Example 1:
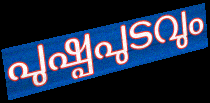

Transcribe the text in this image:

പുഷ്പപുടവും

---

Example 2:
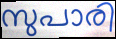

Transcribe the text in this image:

സുപാരി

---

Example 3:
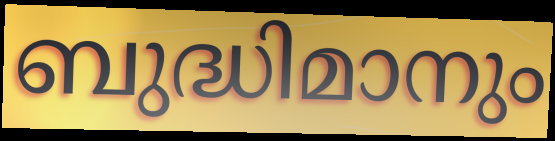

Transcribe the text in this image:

ബുദ്ധിമാനും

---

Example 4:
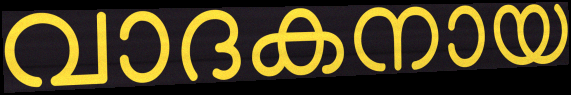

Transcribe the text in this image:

വാദകനായ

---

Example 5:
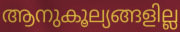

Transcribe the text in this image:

ആനുകൂല്യങ്ങളില്ല